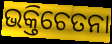
ଭକ୍ତିଚେତନା